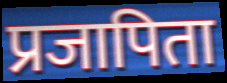
प्रजापिता